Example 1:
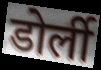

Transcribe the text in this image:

डोर्ली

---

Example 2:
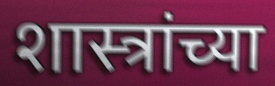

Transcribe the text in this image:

शास्त्रांच्या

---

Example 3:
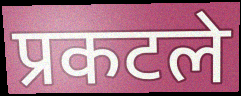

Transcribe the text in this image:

प्रकटले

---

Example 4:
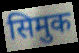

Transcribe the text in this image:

सिमुक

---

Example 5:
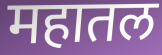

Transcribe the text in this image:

महातल